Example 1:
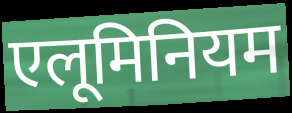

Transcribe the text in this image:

एलूमिनियम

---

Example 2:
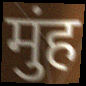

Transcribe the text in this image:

मुंह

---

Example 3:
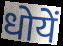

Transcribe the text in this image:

धोयें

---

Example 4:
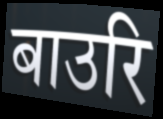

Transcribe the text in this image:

बाउरि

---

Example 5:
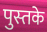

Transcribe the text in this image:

पुस्‍तके